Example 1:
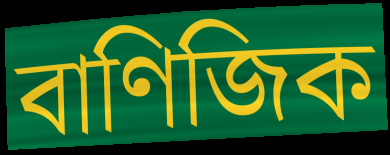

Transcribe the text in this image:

বাণিজিক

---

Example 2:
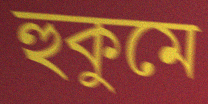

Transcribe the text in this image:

হুকুমে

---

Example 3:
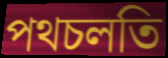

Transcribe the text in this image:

পথচলতি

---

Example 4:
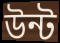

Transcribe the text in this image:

উন্ট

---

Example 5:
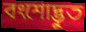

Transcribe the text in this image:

বংশোদ্ভুত